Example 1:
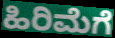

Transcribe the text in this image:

ಹಿರಿಮೆಗೆ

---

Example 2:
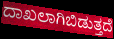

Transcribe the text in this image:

ದಾಖಲಾಗಿಬಿಡುತ್ತದೆ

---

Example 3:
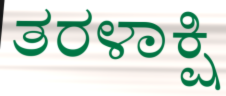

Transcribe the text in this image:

ತರಳಾಕ್ಷಿ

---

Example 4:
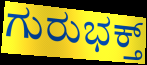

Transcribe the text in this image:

ಗುರುಭಕ್ತ್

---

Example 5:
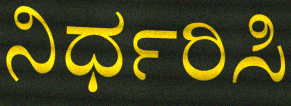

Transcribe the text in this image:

ನಿರ್ಧರಿಸಿ